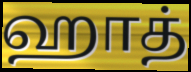
ஹாத்